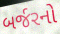
બર્જરનો